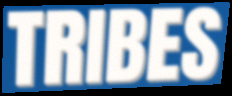
TRIBES